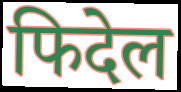
फिदेल